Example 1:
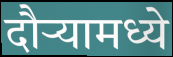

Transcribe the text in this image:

दौऱ्यामध्ये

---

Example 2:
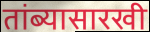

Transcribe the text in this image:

तांब्यासारखी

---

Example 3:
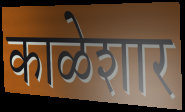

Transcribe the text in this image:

काळेशार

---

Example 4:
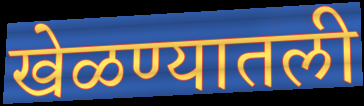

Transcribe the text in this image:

खेळण्यातली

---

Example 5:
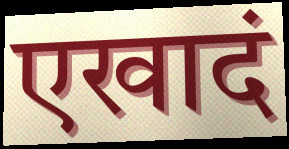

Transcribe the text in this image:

एखादं